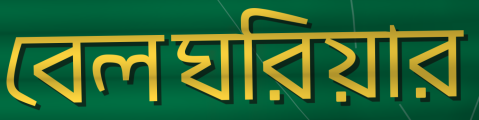
বেলঘরিয়ার